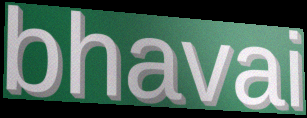
bhavai